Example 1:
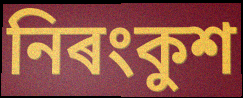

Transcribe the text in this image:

নিৰংকুশ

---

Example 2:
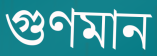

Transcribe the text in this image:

গুণমান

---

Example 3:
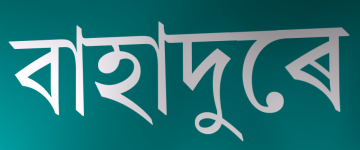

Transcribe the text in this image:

বাহাদুৰে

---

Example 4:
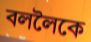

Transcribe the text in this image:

বললৈকে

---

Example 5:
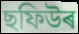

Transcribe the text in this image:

ছফিউৰ